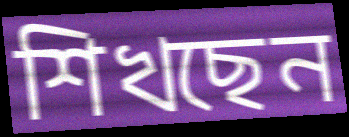
শিখছেন